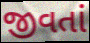
જીવતાં